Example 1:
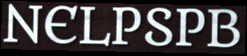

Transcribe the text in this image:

NELPSPB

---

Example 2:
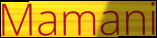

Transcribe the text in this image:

Mamani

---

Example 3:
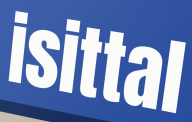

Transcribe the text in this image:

isittal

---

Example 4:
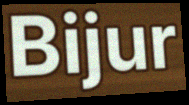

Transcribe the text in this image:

Bijur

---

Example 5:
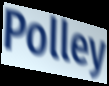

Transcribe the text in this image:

Polley